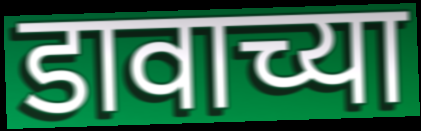
डावाच्या